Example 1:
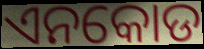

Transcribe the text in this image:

ଏନକୋଡ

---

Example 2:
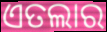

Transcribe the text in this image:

ଏତଲାର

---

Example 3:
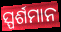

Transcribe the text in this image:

ସ୍ପର୍ଶମାନ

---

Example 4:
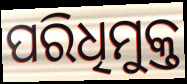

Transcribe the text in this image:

ପରିଧିମୁକ୍ତ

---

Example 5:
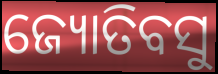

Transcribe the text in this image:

ଜ୍ୟୋତିବସୁ